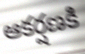
ఆకర్షణకి